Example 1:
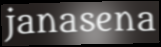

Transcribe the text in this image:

janasena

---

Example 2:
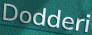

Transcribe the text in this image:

Dodderi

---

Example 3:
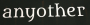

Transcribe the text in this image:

anyother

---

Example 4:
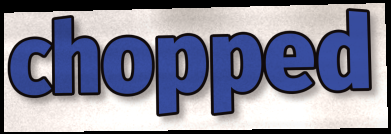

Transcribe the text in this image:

chopped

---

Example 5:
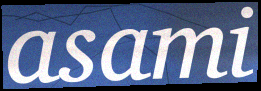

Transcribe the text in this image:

asami